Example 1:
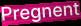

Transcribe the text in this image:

Pregnent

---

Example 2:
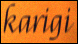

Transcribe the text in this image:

karigi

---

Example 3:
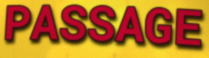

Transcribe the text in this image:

PASSAGE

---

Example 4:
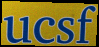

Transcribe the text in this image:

ucsf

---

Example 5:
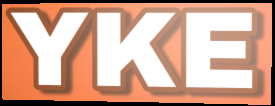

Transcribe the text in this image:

YKE